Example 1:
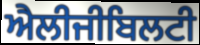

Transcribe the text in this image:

ਐਲੀਜੀਬਿਲਟੀ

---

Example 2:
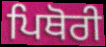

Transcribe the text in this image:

ਪਿਥੋਰੀ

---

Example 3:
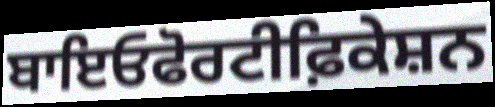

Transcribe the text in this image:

ਬਾਇਓਫੋਰਟੀਫ਼ਿਕੇਸ਼ਨ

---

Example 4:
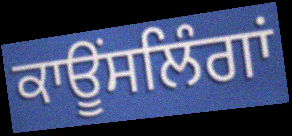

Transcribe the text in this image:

ਕਾਊਂਸਲਿੰਗਾਂ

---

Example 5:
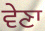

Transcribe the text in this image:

ਵੇਣਾ